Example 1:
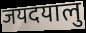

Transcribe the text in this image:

जयदयालु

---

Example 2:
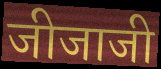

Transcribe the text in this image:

जीजाजी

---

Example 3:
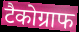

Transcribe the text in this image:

टैकोग्राफ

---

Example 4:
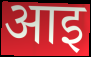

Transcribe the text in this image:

आइ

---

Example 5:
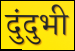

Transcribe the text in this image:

दुंदुभी